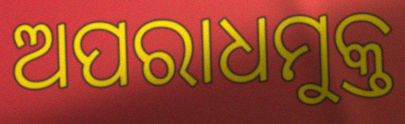
ଅପରାଧମୁକ୍ତ